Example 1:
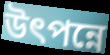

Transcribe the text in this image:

উৎপন্নে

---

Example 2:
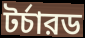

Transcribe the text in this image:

টর্চারড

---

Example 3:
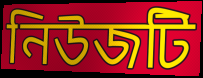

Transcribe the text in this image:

নিউজটি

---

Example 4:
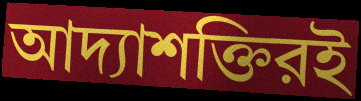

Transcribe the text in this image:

আদ্যাশক্তিরই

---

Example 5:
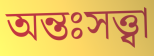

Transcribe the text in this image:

অন্তঃসত্ত্বা